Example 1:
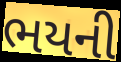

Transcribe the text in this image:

ભયની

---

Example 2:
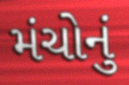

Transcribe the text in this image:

મંચોનું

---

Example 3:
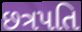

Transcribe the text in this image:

છત્રપતિ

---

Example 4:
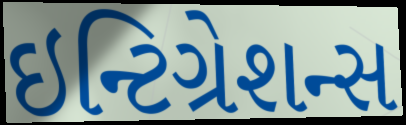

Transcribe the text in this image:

ઇન્ટિગ્રેશન્સ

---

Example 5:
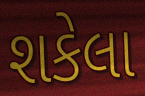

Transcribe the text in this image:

શકેલા